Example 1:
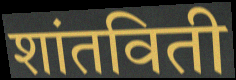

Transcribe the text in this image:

शांतविती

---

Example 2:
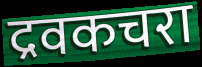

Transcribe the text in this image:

द्रवकचरा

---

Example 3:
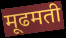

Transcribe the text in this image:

मूढमती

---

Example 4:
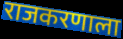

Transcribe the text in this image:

राजकरणाला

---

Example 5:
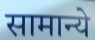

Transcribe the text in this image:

सामान्ये